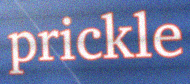
prickle